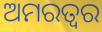
ଅମରତ୍ୱର